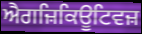
ਐਗਜ਼ਿਕਿਊਟਿਵਜ਼